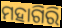
ମହାଗିରି